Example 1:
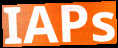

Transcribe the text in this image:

IAPs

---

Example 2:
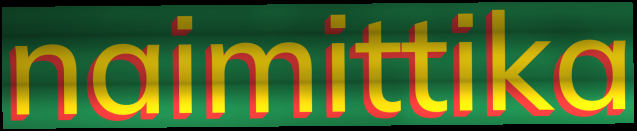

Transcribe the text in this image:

naimittika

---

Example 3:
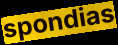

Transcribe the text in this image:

spondias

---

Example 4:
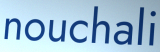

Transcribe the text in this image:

nouchali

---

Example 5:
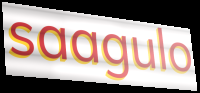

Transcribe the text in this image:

saagulo